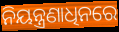
ନିୟନ୍ତ୍ରଣାଧିନରେ